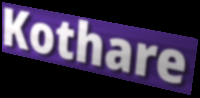
Kothare